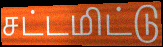
சட்டமிட்டு